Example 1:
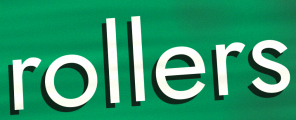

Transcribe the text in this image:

rollers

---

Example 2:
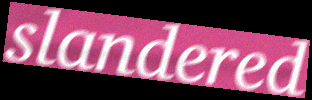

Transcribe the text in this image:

slandered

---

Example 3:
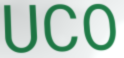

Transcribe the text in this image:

UCO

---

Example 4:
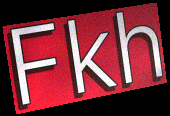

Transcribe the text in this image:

Fkh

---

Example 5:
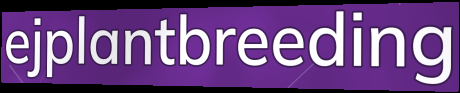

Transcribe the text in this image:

ejplantbreeding